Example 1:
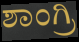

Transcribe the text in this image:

ಶಾಂಗ್ರಿ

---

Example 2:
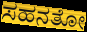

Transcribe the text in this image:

ಸಹನತೋ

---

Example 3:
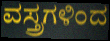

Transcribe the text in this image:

ವಸ್ತ್ರಗಳಿಂದ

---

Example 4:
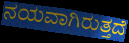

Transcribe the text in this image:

ನಯವಾಗಿರುತ್ತದೆ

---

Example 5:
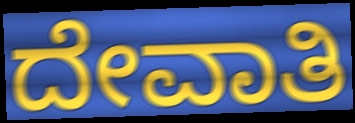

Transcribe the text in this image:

ದೇವಾತಿ